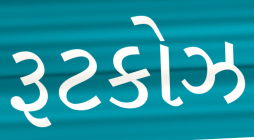
રૂટકોઝ